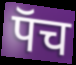
पॅच